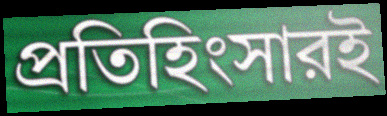
প্রতিহিংসারই